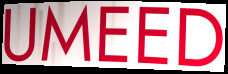
UMEED